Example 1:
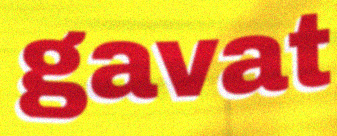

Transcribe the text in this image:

gavat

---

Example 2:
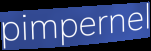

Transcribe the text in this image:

pimpernel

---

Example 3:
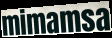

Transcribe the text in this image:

mimamsa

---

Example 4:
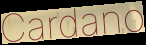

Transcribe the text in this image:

Cardano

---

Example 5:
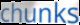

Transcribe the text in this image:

chunks